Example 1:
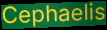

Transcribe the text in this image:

Cephaelis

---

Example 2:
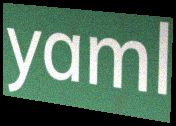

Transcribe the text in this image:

yaml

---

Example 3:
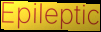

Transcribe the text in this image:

Epileptic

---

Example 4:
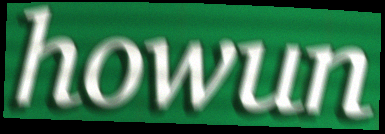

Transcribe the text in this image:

howun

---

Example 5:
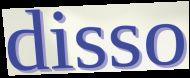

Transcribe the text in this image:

disso